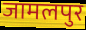
जामलपुर